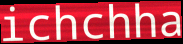
ichchha